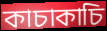
কাচাকাচি